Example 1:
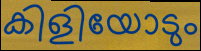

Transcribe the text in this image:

കിളിയോടും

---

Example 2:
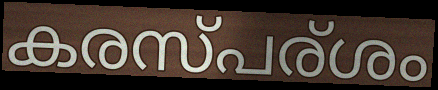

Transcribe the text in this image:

കരസ്പര്ശം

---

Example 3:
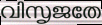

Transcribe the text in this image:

വിസൃജതേ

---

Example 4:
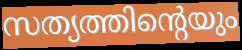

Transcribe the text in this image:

സത്യത്തിന്റെയും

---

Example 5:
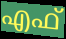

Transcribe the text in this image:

എഫ്